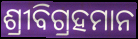
ଶ୍ରୀବିଗ୍ରହମାନ